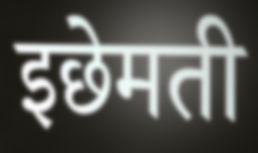
इछेमती